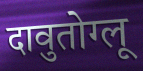
दावुतोग्लू